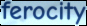
ferocity